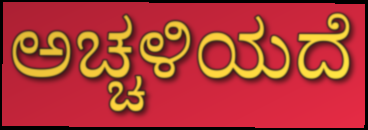
ಅಚ್ಚಳಿಯದೆ